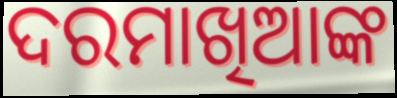
ଦରମାଖିଆଙ୍କ